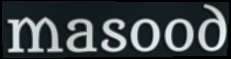
masood